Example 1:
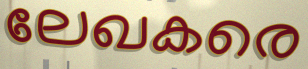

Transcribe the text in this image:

ലേഖകരെ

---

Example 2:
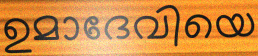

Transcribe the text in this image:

ഉമാദേവിയെ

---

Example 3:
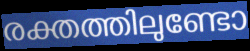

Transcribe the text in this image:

രക്തത്തിലുണ്ടോ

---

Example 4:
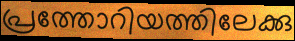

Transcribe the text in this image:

പ്രത്തോറിയത്തിലേക്കു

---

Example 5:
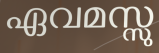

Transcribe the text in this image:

ഏവമസ്സു